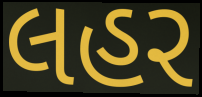
લહર